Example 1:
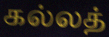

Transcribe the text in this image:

கல்லத்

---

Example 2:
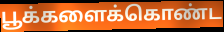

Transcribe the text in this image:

பூக்களைக்கொண்ட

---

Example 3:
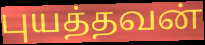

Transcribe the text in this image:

புயத்தவன்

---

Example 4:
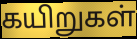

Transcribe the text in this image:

கயிறுகள்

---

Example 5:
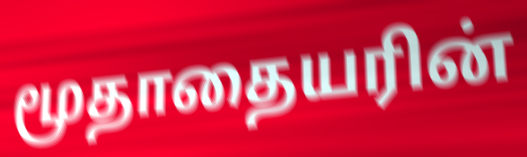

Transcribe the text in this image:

மூதாதையரின்